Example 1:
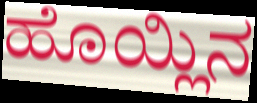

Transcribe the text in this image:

ಹೊಯ್ಲಿನ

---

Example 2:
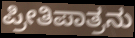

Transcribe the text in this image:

ಪ್ರೀತಿಪಾತ್ರನು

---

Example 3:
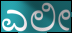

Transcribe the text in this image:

ಎಲೀ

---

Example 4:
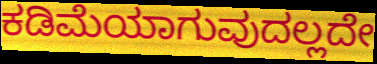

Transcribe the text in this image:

ಕಡಿಮೆಯಾಗುವುದಲ್ಲದೇ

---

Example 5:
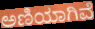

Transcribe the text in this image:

ಅಣಿಯಾಗಿವೆ